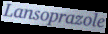
Lansoprazole